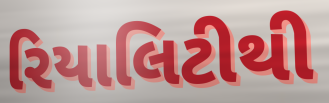
રિયાલિટીથી